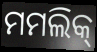
ମମଲିକ୍